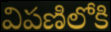
విపణిలోకి